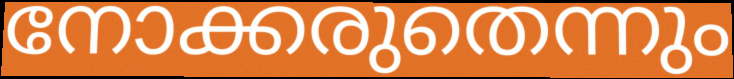
നോക്കരുതെന്നും